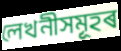
লেখনীসমূহৰ